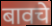
बावचे